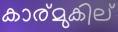
കാര്മുകില്